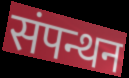
संपन्थन